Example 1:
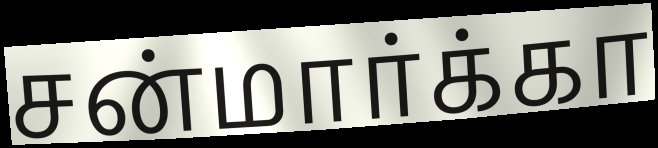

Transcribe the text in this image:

சன்மார்க்கா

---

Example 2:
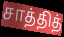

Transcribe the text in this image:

சாத்தித்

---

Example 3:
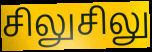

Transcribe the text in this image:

சிலுசிலு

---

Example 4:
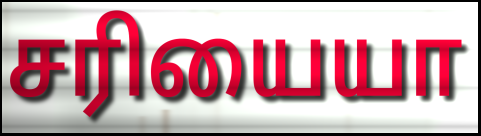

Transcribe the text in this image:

சரியையா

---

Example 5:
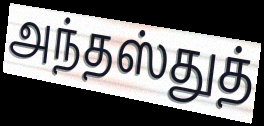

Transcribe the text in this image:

அந்தஸ்துத்